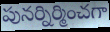
పునర్నిర్మించగా